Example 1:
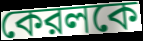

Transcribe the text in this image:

কেরলকে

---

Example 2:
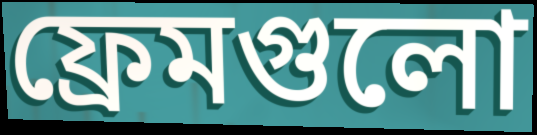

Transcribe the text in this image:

ফ্রেমগুলো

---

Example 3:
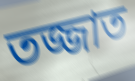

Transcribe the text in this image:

তজ্জাত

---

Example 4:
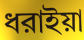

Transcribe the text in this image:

ধরাইয়া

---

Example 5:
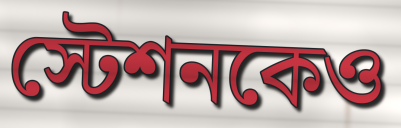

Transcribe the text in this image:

স্টেশনকেও